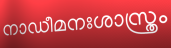
നാഡീമനഃശാസ്ത്രം